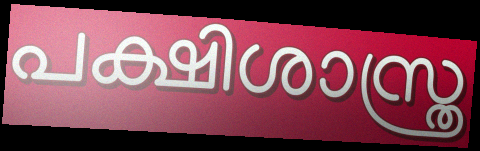
പക്ഷിശാസ്ത്ര